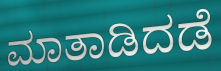
ಮಾತಾಡಿದಡೆ